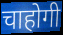
चाहोगी